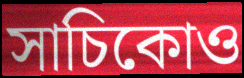
সাচিকোও